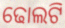
ଢୋଲଟି